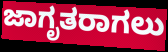
ಜಾಗೃತರಾಗಲು